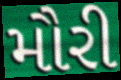
મૌરી